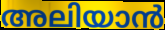
അലിയാൻ